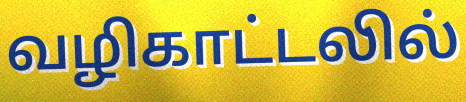
வழிகாட்டலில்